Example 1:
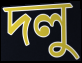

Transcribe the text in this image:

দলু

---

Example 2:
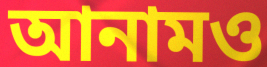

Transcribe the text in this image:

আনামও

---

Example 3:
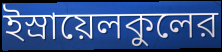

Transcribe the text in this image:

ইস্রায়েলকুলের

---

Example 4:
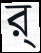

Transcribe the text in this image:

র্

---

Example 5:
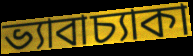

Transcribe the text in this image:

ভ্যাবাচ্যাকা